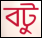
বটু